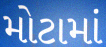
મોટામાં